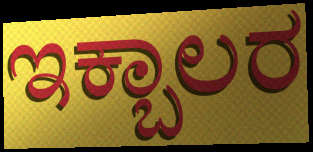
ಇಕ್ಬಾಲರ